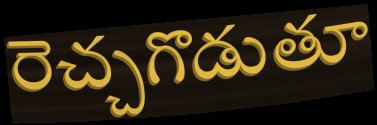
రెచ్చగొడుతూ